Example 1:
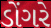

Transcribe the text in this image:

ડોંગરે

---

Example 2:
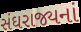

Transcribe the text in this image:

સંઘરાજ્યનાં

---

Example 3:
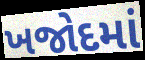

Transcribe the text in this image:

ખજોદમાં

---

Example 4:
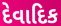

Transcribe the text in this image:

દેવાદિક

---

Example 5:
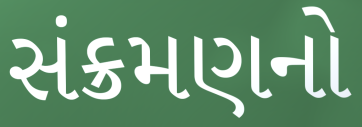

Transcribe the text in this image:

સંક્રમણનો